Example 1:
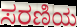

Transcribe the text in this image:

ಸರಣಿಯ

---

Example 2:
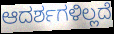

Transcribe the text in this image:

ಆದರ್ಶಗಳಿಲ್ಲದೆ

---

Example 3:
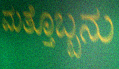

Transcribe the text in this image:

ಮತ್ತೊಬ್ಬನು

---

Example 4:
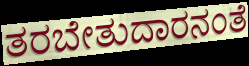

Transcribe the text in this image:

ತರಬೇತುದಾರನಂತೆ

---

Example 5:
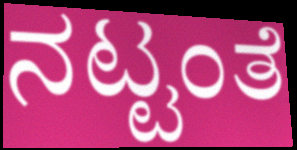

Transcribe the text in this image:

ನಟ್ಟಂತೆ